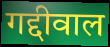
गद्दीवाल